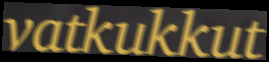
vatkukkut